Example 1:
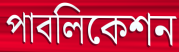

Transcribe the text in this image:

পাবলিকেশন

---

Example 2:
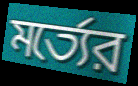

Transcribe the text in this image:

মর্ত্যের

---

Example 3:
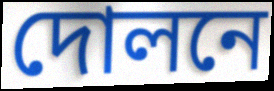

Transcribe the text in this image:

দোলনে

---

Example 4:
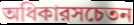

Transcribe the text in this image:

অধিকারসচেতন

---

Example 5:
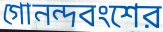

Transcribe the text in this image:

গোনন্দবংশের